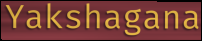
Yakshagana